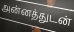
அன்னத்துடன்